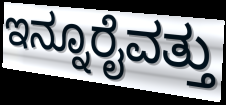
ಇನ್ನೂರೈವತ್ತು